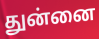
துன்னை